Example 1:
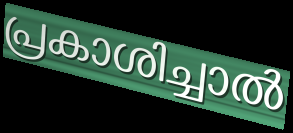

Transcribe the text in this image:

പ്രകാശിച്ചാൽ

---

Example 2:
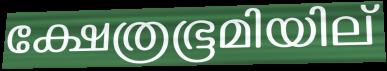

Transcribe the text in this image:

ക്ഷേത്രഭൂമിയില്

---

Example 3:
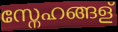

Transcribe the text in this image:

സ്നേഹങ്ങള്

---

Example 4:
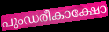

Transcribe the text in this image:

പുംഡരീകാക്ഷോ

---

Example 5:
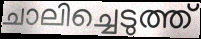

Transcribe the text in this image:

ചാലിച്ചെടുത്ത്